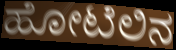
ಹೋಟೆಲಿನ